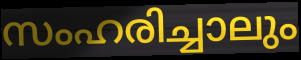
സംഹരിച്ചാലും